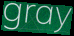
gray